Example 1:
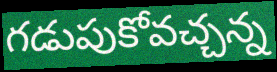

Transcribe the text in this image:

గడుపుకోవచ్చన్న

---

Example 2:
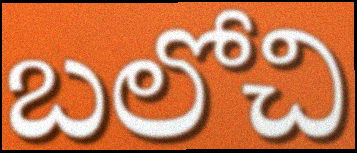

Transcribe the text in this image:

బలోచి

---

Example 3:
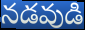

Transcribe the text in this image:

నడవుడి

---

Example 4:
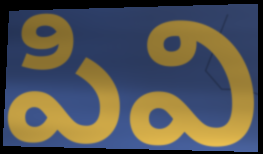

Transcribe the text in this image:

పివి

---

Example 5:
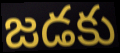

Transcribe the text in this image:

జడకు